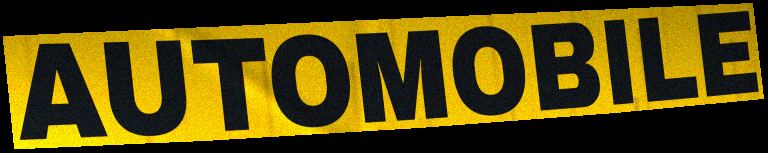
AUTOMOBILE